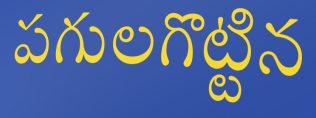
పగులగొట్టిన